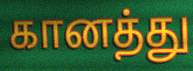
கானத்து